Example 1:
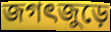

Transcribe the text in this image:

জগৎজুড়ে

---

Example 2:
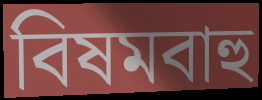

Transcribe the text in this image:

বিষমবাহু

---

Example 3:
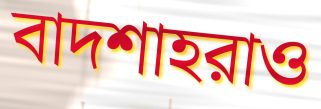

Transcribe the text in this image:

বাদশাহরাও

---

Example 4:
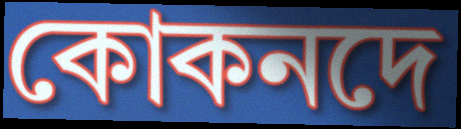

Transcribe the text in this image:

কোকনদে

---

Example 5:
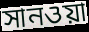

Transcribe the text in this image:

সানওয়া